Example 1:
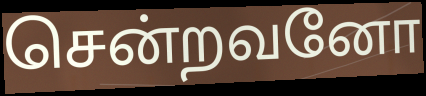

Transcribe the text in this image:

சென்றவனோ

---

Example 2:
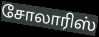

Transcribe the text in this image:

சோலாரிஸ்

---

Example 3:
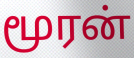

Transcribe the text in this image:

மூரன்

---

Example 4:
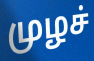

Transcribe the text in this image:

முழச்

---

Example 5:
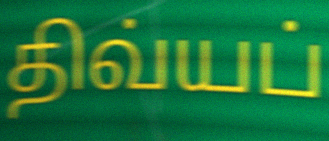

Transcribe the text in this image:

திவ்யப்